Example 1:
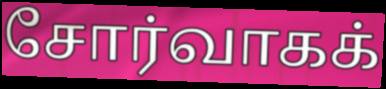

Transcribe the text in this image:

சோர்வாகக்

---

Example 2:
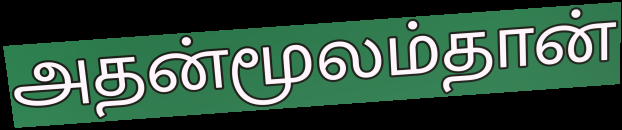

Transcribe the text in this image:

அதன்மூலம்தான்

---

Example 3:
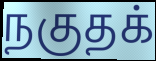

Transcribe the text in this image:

நகுதக்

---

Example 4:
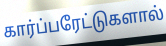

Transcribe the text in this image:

கார்ப்பரேட்டுகளால்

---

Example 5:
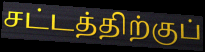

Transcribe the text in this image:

சட்டத்திற்குப்